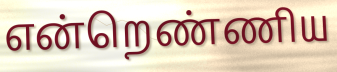
என்றெண்ணிய